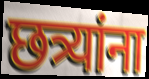
छत्र्यांना